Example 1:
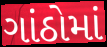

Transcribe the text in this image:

ગાંઠોમાં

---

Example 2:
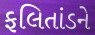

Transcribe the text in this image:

ફલિતાંડને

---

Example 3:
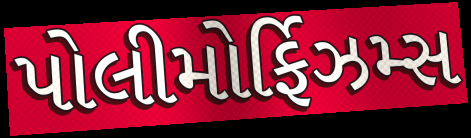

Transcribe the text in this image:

પોલીમોર્ફિઝમ્સ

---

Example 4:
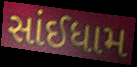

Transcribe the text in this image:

સાંઈધામ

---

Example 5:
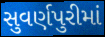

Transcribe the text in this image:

સુવર્ણપુરીમાં